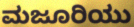
ಮಜೂರಿಯು